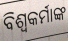
ବିଶ୍ୱକର୍ମାଙ୍କ